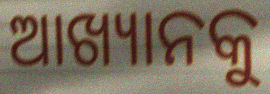
ଆଖ୍ୟାନକୁ